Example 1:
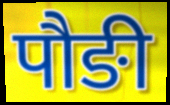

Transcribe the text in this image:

पौङी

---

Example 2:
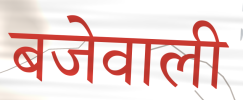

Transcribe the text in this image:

बजेवाली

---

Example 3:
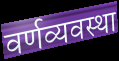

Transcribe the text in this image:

वर्णव्यवस्था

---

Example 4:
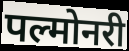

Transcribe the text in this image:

पल्मोनरी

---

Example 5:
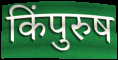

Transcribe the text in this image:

किंपुरुष